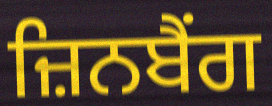
ਜ਼ਿਨਬੈਂਗ